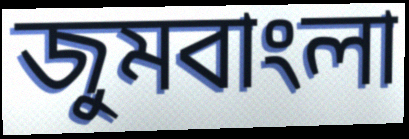
জুমবাংলা